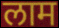
लाम